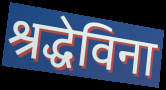
श्रद्धेविना